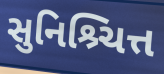
સુનિશ્ર્ચિત્ત